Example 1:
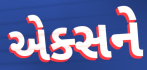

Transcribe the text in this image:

એક્સને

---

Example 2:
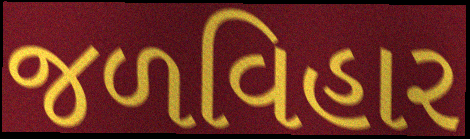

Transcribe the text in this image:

જળવિહાર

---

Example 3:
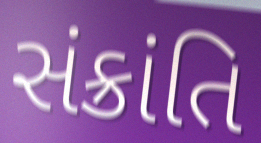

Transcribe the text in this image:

સંક્રાંતિ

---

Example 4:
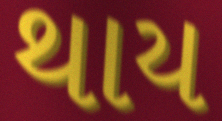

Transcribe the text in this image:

થાય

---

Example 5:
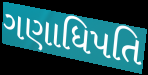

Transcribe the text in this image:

ગણાધિપતિ